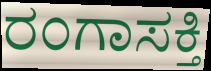
ರಂಗಾಸಕ್ತಿ